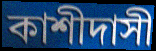
কাশীদাসী